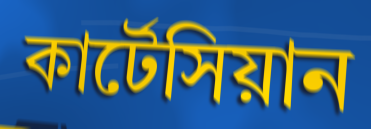
কার্টেসিয়ান